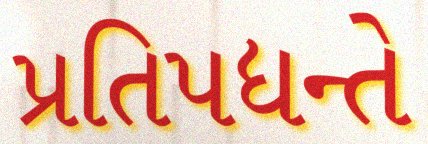
પ્રતિપદ્યન્તે